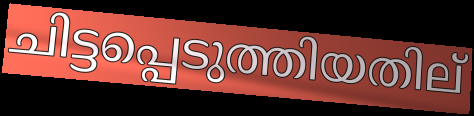
ചിട്ടപ്പെടുത്തിയതില്